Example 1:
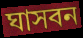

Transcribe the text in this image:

ঘাসবন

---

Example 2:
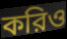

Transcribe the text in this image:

করিও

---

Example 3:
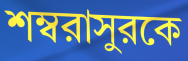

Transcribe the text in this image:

শম্বরাসুরকে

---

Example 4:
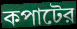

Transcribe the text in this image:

কপাটের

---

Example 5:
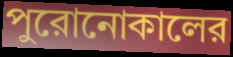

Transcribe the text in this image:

পুরোনোকালের